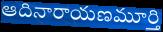
ఆదినారాయణమూర్తి